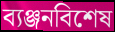
ব্যঞ্জনবিশেষ